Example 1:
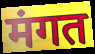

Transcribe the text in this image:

मंगत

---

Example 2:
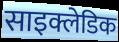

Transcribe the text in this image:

साइक्लेडिक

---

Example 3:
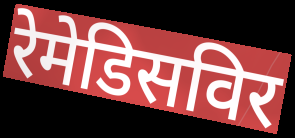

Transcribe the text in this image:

रेमेडिसविर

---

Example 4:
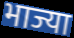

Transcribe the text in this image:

भाज्या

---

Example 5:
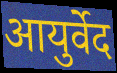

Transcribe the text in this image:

आयुर्वेद